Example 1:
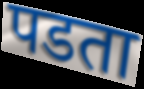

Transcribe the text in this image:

पडता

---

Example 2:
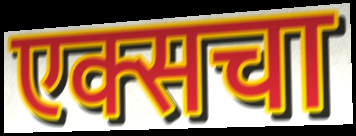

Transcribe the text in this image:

एक्सचा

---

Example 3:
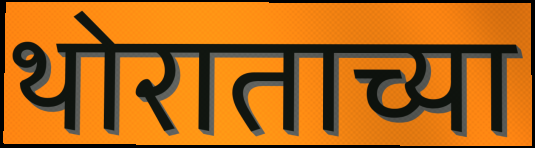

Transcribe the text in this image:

थोराताच्या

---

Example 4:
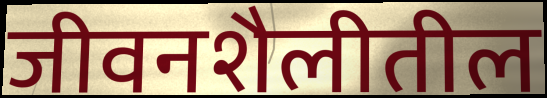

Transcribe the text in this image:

जीवनशैलीतील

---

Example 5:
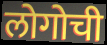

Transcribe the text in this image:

लोगोची